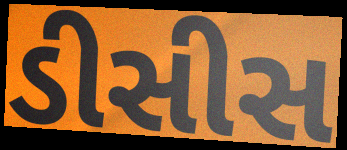
ડીસીસ